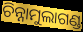
ଚିନ୍ନାମୁଲାଗଣ୍ଡ